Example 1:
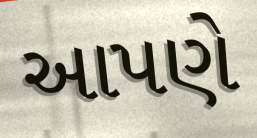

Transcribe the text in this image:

આપણે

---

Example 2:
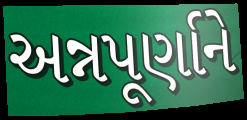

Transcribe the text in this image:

અન્નપૂર્ણાને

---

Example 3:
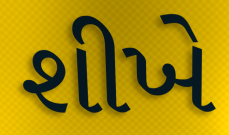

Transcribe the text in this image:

શીખે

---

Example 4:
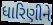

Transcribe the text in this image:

ધારિણીને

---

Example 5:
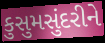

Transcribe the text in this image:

કુસુમસુંદરીને